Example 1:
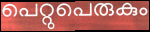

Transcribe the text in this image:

പെറ്റുപെരുകും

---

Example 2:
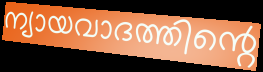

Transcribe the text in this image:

ന്യായവാദത്തിന്റെ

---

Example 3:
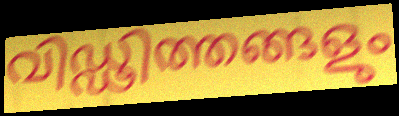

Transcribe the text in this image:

വിഡ്ഢിത്തങ്ങളും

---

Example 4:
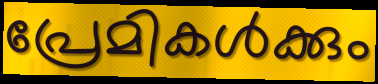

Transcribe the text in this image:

പ്രേമികൾക്കും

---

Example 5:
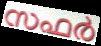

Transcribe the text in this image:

സഫർ